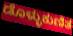
ಡೊಳ್ಳುಕುಣಿತ